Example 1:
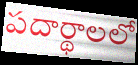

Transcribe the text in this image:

పదార్థాలలో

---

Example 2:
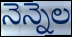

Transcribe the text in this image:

నెన్నెల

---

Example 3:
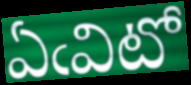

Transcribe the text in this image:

ఏఁవిటో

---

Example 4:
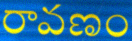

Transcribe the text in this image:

రావణం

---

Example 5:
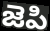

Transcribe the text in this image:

జెపి